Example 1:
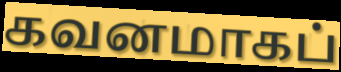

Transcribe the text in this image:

கவனமாகப்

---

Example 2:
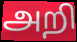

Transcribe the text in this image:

அறி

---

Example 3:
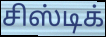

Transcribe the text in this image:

சிஸ்டிக்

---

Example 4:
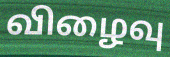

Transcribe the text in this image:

விழைவு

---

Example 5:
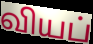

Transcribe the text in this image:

வியப்